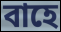
বাহে